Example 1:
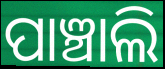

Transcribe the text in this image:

ପାଞ୍ଚାଲି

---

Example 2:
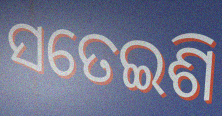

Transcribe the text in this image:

ସତେଇଶି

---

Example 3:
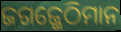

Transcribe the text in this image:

ଜଗଜ୍ଜେଠିମାନ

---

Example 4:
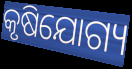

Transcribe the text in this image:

କୃଷିଯୋଗ୍ୟ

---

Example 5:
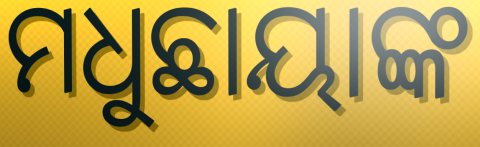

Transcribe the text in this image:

ମଧୁଛାୟାଙ୍କ